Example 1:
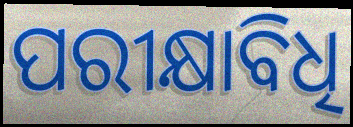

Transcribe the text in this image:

ପରୀକ୍ଷାବିଧି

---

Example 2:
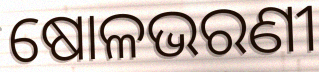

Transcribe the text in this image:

ଷୋଳଭରଣୀ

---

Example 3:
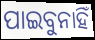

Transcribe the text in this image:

ପାଇବୁନାହିଁ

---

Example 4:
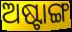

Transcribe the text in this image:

ଅଷ୍ଟାଙ୍ଗ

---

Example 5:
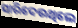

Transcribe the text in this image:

ସାରିଦେଉଥିଲେ